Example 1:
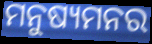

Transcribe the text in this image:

ମନୁଷ୍ୟମନର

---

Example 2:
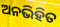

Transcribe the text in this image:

ଅନଭିହିତ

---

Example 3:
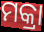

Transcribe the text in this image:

ମକ୍ରା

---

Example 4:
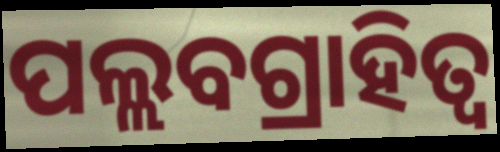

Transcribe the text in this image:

ପଲ୍ଲବଗ୍ରାହିତ୍ୱ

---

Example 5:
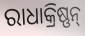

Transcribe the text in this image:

ରାଧାକ୍ରିଷ୍ଣନ୍